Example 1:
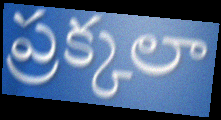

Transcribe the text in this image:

ప్రక్కలా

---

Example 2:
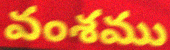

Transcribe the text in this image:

వంశము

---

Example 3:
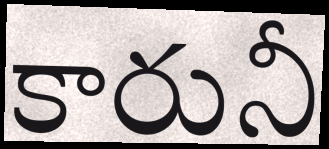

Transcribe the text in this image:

కారునీ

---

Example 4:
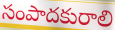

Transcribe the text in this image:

సంపాదకురాలి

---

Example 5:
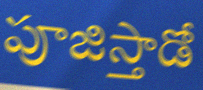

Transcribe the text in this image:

పూజిస్తాడో